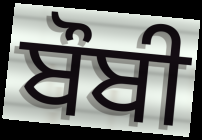
ਬੌਬੀ